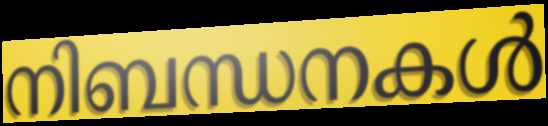
നിബന്ധനകൾ